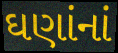
ઘણાંનાં